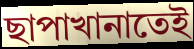
ছাপাখানাতেই